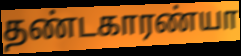
தண்டகாரண்யா